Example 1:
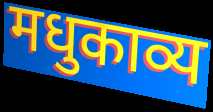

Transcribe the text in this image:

मधुकाव्य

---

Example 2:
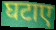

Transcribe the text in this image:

घटाए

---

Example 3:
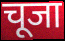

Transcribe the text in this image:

चूजा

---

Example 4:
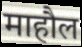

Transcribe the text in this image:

माहौल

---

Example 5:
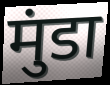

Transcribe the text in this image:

मुंडा